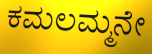
ಕಮಲಮ್ಮನೇ